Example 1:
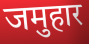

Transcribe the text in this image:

जमुहार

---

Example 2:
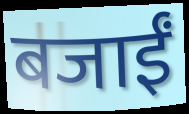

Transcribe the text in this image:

बजाईं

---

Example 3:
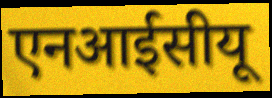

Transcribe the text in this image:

एनआईसीयू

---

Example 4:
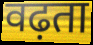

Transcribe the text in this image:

वढ़ता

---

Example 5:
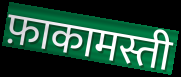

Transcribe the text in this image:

फ़ाकामस्ती